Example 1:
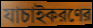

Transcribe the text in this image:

যাচাইকরণের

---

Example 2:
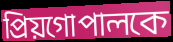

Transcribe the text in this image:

প্রিয়গোপালকে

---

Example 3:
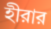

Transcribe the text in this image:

হীরার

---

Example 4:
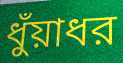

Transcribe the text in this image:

ধুঁয়াধর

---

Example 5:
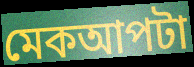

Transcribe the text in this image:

মেকআপটা